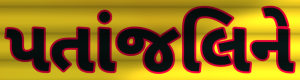
પતાંજલિને